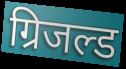
ग्रिजल्ड